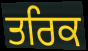
ਤਰਿਕ